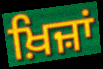
ਖ਼ਿਜ਼ਾਂ